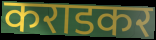
कराडकर